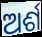
ଅର୍ଶ